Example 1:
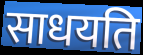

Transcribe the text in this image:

साधयति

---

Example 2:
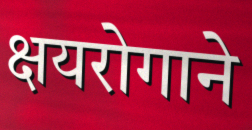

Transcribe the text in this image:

क्षयरोगाने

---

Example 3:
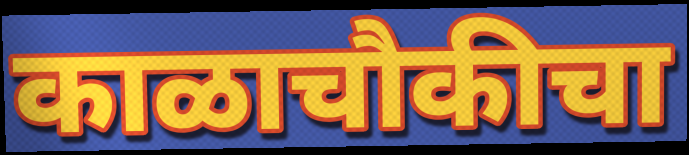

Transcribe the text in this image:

काळाचौकीचा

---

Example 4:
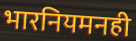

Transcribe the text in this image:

भारनियमनही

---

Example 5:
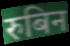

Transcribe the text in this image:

रुबिन